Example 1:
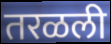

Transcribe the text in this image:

तरळली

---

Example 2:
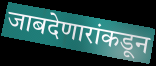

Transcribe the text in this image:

जाबदेणारांकडून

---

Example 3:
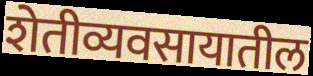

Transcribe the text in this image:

शेतीव्यवसायातील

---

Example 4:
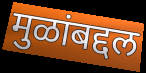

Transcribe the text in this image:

मुळांबद्दल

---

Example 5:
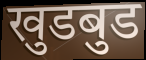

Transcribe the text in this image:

खुडबुड